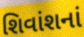
શિવાંશનાં